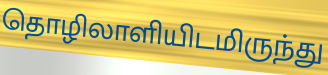
தொழிலாளியிடமிருந்து